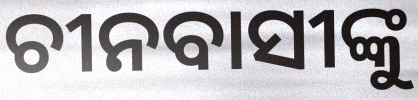
ଚୀନବାସୀଙ୍କୁ